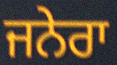
ਜਨੇਰਾ